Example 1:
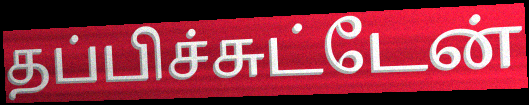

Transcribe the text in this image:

தப்பிச்சுட்டேன்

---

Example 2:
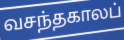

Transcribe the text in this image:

வசந்தகாலப்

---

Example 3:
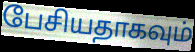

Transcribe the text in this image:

பேசியதாகவும்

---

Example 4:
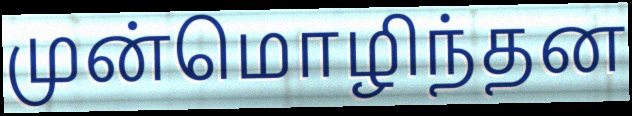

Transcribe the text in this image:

முன்மொழிந்தன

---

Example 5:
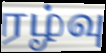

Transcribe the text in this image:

ரழ்வு